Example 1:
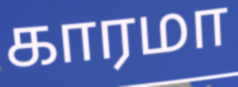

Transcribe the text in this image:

காரமா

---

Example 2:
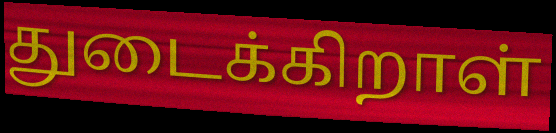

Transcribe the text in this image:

துடைக்கிறாள்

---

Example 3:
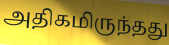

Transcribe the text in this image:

அதிகமிருந்தது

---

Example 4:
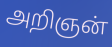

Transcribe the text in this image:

அறிஞன்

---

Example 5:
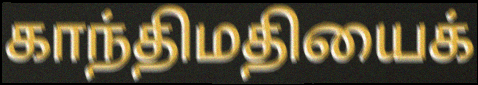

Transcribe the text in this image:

காந்திமதியைக்